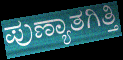
ಪುಣ್ಯಾತಗಿತ್ತಿ